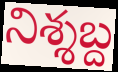
నిశ్శబ్ద